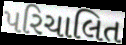
પરિચાલિત